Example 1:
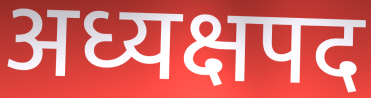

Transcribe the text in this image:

अध्यक्षपद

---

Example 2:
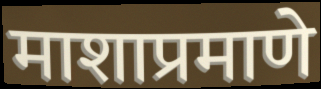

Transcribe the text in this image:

माशाप्रमाणे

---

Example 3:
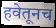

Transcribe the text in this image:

हवेतूनच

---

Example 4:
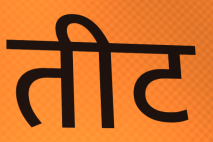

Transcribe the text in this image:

तीट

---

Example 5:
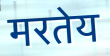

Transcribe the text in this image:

मरतेय